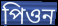
পিওন